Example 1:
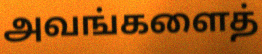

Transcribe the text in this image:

அவங்களைத்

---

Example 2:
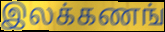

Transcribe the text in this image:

இலக்கணங்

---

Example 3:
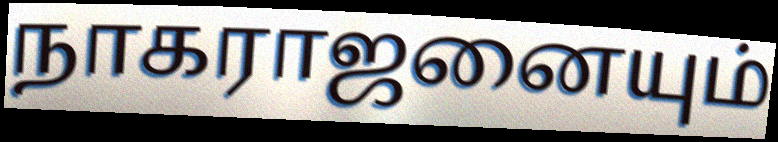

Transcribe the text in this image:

நாகராஜனையும்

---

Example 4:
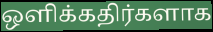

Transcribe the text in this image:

ஒளிக்கதிர்களாக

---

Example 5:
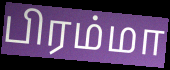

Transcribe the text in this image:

பிரம்மா